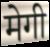
मेगी